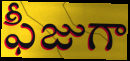
ఫీజుగా